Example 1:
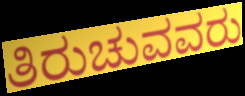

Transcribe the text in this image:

ತಿರುಚುವವರು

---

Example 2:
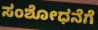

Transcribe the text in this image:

ಸಂಶೋಧನೆಗೆ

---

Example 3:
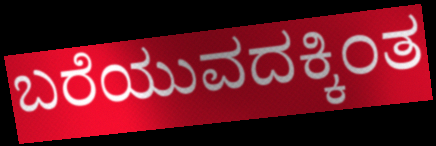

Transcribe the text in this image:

ಬರೆಯುವದಕ್ಕಿಂತ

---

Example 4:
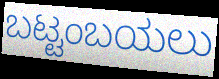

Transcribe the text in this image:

ಬಟ್ಟಂಬಯಲು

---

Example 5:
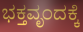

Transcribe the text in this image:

ಭಕ್ತವೃಂದಕ್ಕೆ